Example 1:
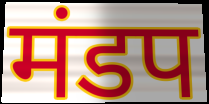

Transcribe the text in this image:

मंडप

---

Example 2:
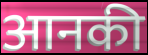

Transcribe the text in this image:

आनकी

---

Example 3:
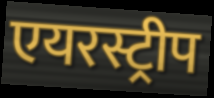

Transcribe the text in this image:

एयरस्ट्रीप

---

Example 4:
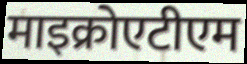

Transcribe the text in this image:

माइक्रोएटीएम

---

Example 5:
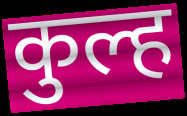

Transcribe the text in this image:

कुल्ह